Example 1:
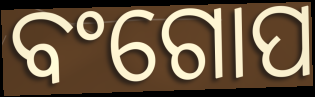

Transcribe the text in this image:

ବଂଗୋପ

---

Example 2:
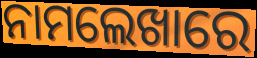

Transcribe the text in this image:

ନାମଲେଖାରେ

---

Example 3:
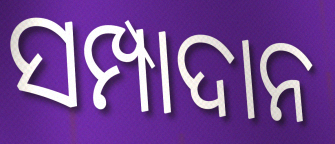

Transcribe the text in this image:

ସମ୍ପାଦାନ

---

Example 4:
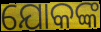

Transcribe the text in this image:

ଯୋକଙ୍କ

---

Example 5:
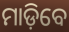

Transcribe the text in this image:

ମାଡ଼ିବେ